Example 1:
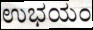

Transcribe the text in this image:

ಉಭಯಂ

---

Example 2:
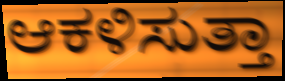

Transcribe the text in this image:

ಆಕಳಿಸುತ್ತಾ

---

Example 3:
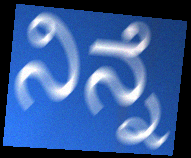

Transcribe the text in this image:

ನಿನ್ನೆ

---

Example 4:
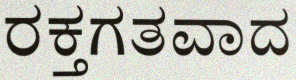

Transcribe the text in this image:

ರಕ್ತಗತವಾದ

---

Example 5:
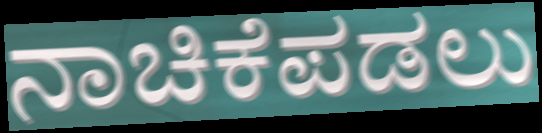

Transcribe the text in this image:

ನಾಚಿಕೆಪಡಲು